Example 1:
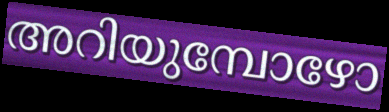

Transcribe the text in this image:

അറിയുമ്പോഴോ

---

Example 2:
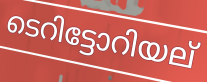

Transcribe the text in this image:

ടെറിട്ടോറിയല്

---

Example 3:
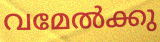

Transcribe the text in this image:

വമേൽക്കു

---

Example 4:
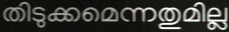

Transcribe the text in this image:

തിടുക്കമെന്നതുമില്ല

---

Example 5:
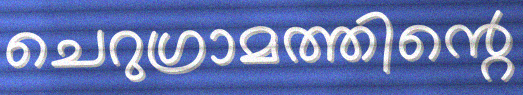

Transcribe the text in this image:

ചെറുഗ്രാമത്തിന്റെ